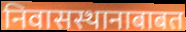
निवासस्थानाबाबत